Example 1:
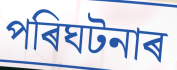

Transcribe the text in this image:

পৰিঘটনাৰ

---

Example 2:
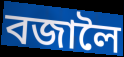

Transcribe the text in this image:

বজালৈ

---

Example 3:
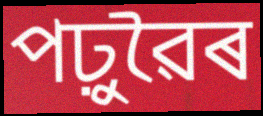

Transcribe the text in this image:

পঢ়ুৱৈৰ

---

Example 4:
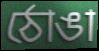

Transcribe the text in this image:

ঠোঙা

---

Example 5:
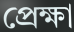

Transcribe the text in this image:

প্ৰেক্ষা